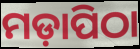
ମଡ଼ାପିଠା